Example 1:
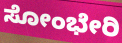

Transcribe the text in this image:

ಸೋಂಭೇರಿ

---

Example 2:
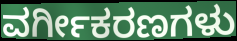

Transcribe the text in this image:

ವರ್ಗೀಕರಣಗಳು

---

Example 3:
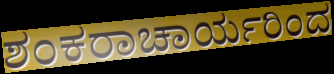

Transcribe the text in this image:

ಶಂಕರಾಚಾರ್ಯರಿಂದ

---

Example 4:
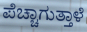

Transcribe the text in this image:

ಪೆಚ್ಚಾಗುತ್ತಾಳೆ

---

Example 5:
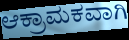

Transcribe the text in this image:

ಆಕ್ರಾಮಕವಾಗಿ